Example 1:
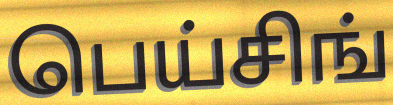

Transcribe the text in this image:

பெய்சிங்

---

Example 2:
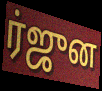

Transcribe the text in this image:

ர்ஜுன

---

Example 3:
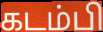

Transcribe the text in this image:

கடம்பி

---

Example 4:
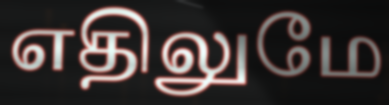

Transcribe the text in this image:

எதிலுமே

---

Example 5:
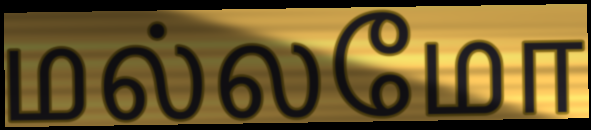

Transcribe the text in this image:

மல்லமோ